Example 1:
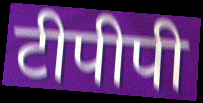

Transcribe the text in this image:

टीपीपी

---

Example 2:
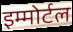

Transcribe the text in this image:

इम्मोर्टल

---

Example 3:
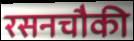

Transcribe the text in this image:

रसनचौकी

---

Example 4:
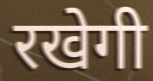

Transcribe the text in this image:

रखेगी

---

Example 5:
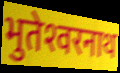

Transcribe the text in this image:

भुतेश्वरनाथ